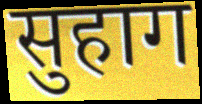
सुहाग